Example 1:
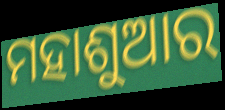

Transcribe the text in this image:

ମହାଶୁଆର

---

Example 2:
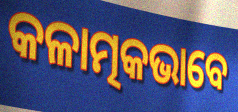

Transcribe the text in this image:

କଳାତ୍ମକଭାବେ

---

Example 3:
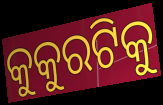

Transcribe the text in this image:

କୁକୁରଟିକୁ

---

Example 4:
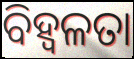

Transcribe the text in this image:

ବିହ୍ଵଳତା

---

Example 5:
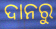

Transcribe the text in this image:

ଦାନରୁ